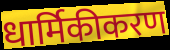
धार्मिकीकरण